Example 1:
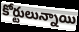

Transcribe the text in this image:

కోర్టులున్నాయి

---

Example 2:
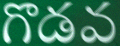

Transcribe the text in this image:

గొడవ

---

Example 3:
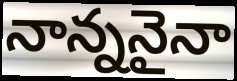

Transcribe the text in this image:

నాన్ననైనా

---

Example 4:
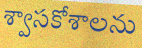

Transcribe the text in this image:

శ్వాసకోశాలను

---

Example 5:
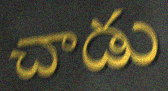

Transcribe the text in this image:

చాడు